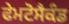
ਫੇਮਟੋਸੈਕੰਡ